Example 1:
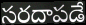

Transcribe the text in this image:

సరదాపడే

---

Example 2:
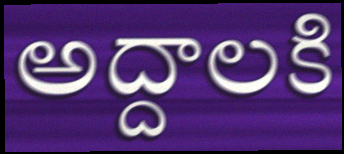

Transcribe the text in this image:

అద్దాలకి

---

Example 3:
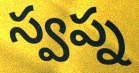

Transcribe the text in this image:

స్వప్న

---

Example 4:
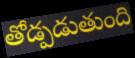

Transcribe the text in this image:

తోడ్పడుతుంది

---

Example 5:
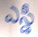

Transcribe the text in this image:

ఎస్డీ